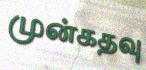
முன்கதவு